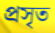
প্রসৃত